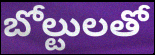
బోల్టులతో